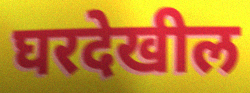
घरदेखील